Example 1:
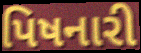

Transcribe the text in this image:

પિષનારી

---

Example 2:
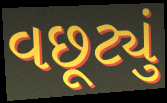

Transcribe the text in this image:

વછૂટ્યું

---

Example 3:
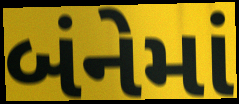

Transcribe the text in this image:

બંનેમાં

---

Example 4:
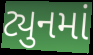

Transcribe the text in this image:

ટ્યુનમાં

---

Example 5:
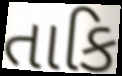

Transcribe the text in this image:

તાકિ